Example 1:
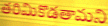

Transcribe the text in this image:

తరిమికొడతామని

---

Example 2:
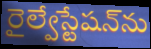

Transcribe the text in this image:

రైల్వేస్టేషన్‌ను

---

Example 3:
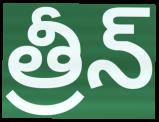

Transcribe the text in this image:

త్రీన్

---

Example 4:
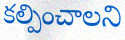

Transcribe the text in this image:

కల్పించాలని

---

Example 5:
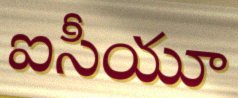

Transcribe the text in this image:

ఐసీయూ